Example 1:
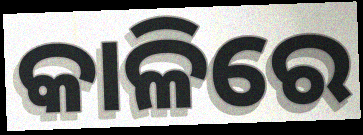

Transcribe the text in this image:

କାଳିରେ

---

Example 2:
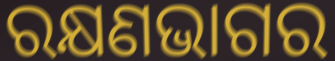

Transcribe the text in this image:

ରକ୍ଷଣଭାଗର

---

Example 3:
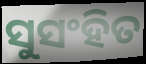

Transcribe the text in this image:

ସୁସଂହିତ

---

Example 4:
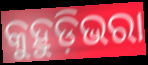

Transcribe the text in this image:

କୁହୁଡ଼ିଭରା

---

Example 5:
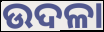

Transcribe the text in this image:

ଉଦଳା